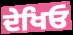
ਦੇਖਿਓ